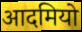
आदमियो